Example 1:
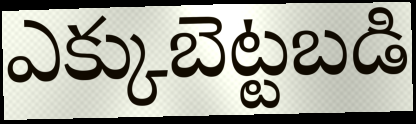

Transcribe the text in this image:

ఎక్కుబెట్టబడి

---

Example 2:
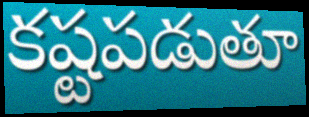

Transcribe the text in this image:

కష్టపడుతూ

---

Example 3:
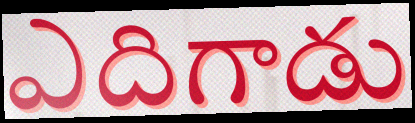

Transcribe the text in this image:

ఎదిగాడు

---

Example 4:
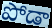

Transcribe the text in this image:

పోడా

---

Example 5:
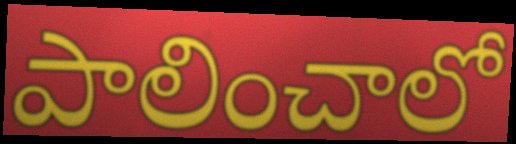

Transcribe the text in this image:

పాలించాలో